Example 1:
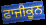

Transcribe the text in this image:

ਫਾਜੀਕੂਨ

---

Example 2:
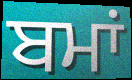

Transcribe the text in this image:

ਬਮਾਂ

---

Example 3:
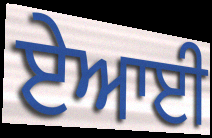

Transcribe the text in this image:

ਏਆਈ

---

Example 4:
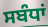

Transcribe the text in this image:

ਸਬੰਧਾਂ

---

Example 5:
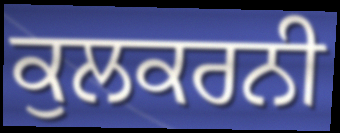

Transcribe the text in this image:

ਕੁਲਕਰਨੀ